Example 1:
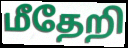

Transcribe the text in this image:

மீதேறி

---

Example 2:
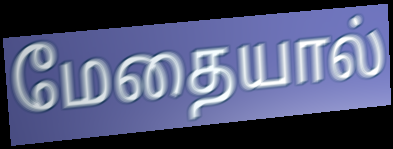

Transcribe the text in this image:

மேதையால்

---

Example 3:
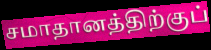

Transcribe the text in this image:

சமாதானத்திற்குப்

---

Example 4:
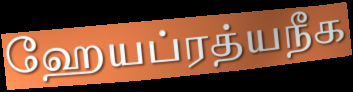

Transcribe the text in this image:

ஹேயப்ரத்யநீக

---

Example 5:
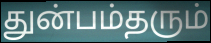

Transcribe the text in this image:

துன்பம்தரும்